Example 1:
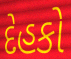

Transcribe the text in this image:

દેહકો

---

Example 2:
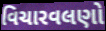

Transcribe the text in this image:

વિચારવલણો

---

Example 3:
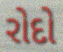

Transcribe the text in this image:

રોદો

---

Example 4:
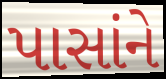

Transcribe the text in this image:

પાસાંને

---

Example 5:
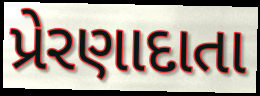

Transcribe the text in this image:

પ્રેરણાદાતા